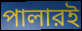
পালারই